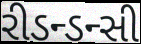
રીડન્ડન્સી